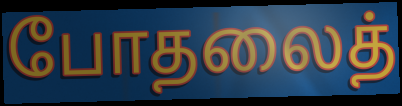
போதலைத்